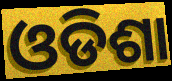
ଓଡିଶା